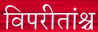
विपरीतांश्च